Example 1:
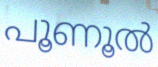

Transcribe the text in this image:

പൂണൂൽ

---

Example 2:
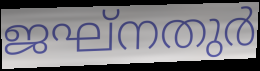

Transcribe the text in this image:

ജഘ്നതുർ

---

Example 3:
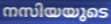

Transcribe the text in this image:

നസിയയുടെ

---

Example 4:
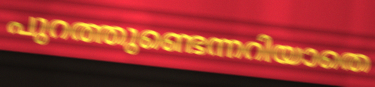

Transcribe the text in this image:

പുറത്തുണ്ടെന്നറിയാതെ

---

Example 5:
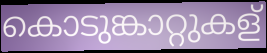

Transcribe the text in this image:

കൊടുങ്കാറ്റുകള്